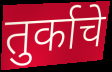
तुर्काचे